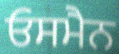
ਓਸਮੈਨ